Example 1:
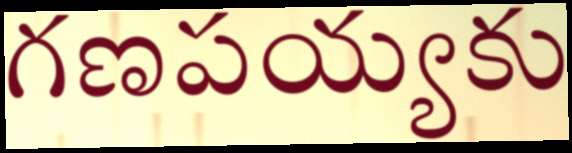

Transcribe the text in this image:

గణపయ్యకు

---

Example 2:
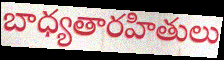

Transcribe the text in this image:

బాధ్యతారహితులు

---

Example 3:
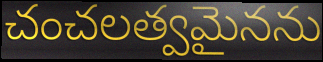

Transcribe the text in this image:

చంచలత్వమైనను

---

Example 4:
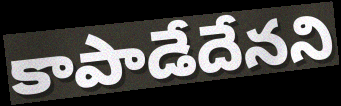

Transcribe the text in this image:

కాపాడేదేనని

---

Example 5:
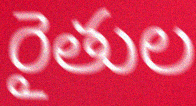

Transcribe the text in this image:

రైతుల